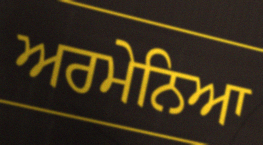
ਅਰਮੇਨਿਆ